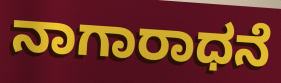
ನಾಗಾರಾಧನೆ